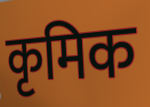
कृमिक